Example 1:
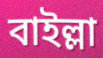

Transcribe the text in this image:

বাইল্লা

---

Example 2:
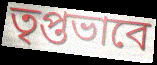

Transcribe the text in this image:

তৃপ্তভাবে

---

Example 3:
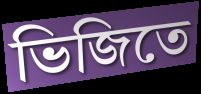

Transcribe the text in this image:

ভিজিতে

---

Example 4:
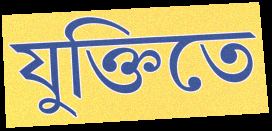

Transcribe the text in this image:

যুক্তিতে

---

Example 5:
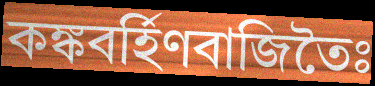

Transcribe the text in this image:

কঙ্কবর্হিণবাজিতৈঃ